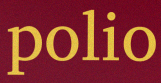
polio